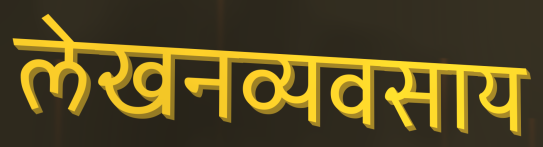
लेखनव्यवसाय